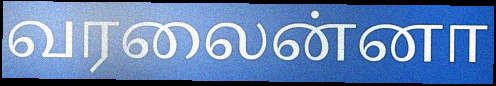
வரலைன்னா